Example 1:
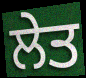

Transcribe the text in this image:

ਲੇਤ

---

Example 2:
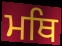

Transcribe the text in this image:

ਮਥਿ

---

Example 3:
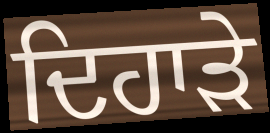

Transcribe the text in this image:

ਦਿਹਾਡ਼ੇ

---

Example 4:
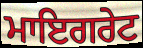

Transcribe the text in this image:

ਮਾਇਗਰੇਟ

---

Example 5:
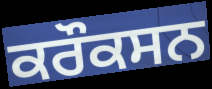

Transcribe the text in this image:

ਕਰੌਕਸਨ